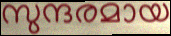
സുന്ദരമായ